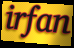
irfan